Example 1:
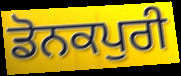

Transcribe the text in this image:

ਡੋਨਕਪੁਰੀ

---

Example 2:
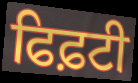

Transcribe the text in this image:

ਫਿਫ਼ਟੀ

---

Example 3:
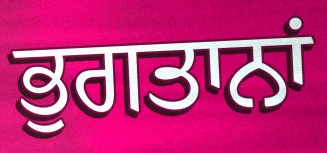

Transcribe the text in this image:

ਭੁਗਤਾਨਾਂ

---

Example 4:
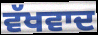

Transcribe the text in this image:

ਵੱਖਵਾਦ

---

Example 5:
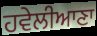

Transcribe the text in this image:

ਹਵੇਲੀਆਣਾ